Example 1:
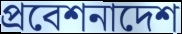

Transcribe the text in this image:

প্রবেশনাদেশ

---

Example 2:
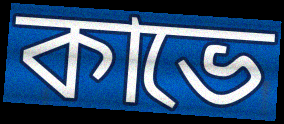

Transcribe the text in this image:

কাভে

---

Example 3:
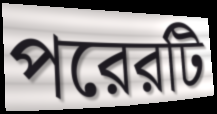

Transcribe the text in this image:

পরেরটি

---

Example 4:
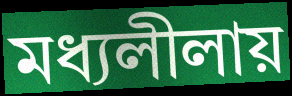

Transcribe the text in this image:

মধ্যলীলায়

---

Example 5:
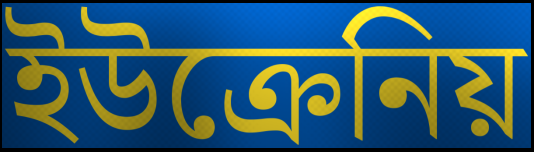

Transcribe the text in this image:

ইউক্রেনিয়